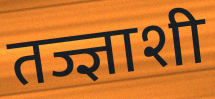
तज्ज्ञाशी